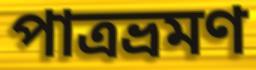
পাত্রভ্রমণ